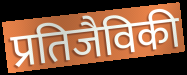
प्रतिजैविकी